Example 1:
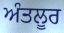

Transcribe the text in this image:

ਅੰਤਲੂਰ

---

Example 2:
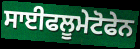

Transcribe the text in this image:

ਸਾਈਫਲੂਮੇਟੋਫੇਨ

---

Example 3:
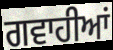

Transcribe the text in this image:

ਗਵਾਹੀਆਂ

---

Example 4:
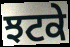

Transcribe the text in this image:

ਝਟਕੇ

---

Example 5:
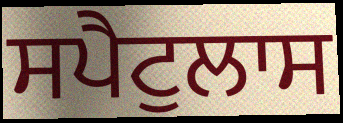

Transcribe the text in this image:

ਸਪੈਟੁਲਾਸ